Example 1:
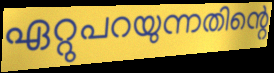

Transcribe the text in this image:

ഏറ്റുപറയുന്നതിന്റെ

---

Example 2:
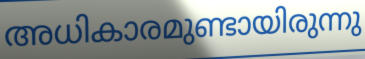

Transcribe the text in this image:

അധികാരമുണ്ടായിരുന്നു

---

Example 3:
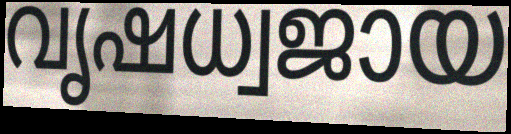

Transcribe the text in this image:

വൃഷധ്വജായ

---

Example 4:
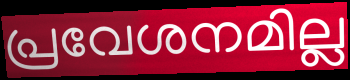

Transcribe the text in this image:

പ്രവേശനമില്ല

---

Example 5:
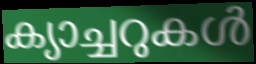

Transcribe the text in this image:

ക്യാച്ചറുകൾ